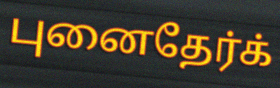
புனைதேர்க்